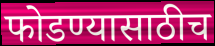
फोडण्यासाठीच